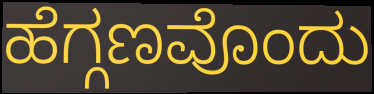
ಹೆಗ್ಗಣವೊಂದು